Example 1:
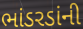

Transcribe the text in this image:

ભાંડરડાંની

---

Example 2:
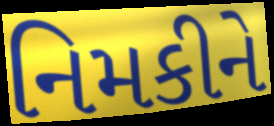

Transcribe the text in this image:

નિમકીને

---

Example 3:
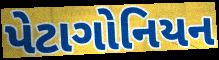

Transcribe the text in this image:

પેટાગોનિયન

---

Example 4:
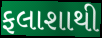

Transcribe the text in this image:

ફલાશાથી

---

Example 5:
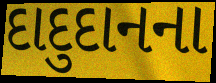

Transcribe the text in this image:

દાદુદાનના